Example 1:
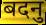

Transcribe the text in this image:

बदनु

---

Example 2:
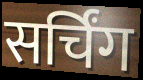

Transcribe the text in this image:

सर्चिंग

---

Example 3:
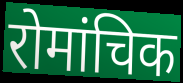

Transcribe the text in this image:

रोमांचिक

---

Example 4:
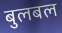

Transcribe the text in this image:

बुलबल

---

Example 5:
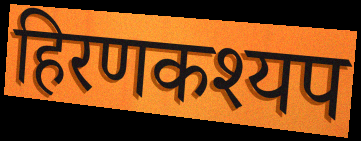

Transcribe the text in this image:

हिरणकश्यप